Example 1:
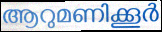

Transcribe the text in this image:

ആറുമണിക്കൂർ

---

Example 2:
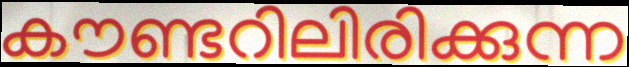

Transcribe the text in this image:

കൗണ്ടറിലിരിക്കുന്ന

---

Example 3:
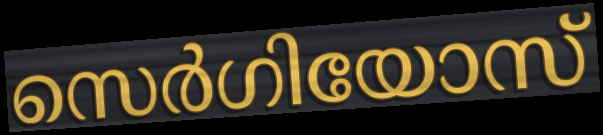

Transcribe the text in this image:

സെർഗിയോസ്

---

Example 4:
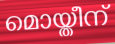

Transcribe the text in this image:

മൊയ്തീന്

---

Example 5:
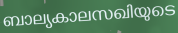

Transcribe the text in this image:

ബാല്യകാലസഖിയുടെ